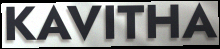
KAVITHA